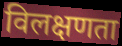
विलक्षणता